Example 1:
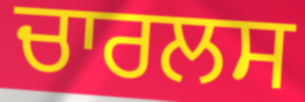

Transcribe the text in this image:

ਚਾਰਲਸ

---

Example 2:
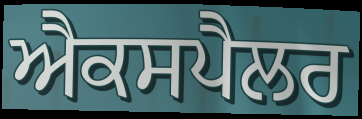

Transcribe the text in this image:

ਐਕਸਪੈਲਰ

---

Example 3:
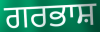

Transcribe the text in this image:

ਗਰਭਾਸ਼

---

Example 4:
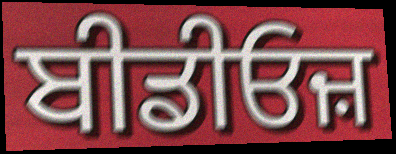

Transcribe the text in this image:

ਬੀਡੀਓਜ਼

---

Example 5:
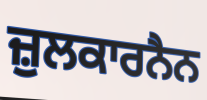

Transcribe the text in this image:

ਜ਼ੁਲਕਾਰਨੈਨ